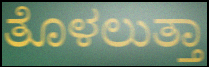
ತೊಳಲುತ್ತಾ